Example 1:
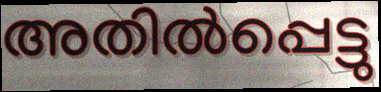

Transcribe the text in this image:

അതിൽപ്പെട്ടു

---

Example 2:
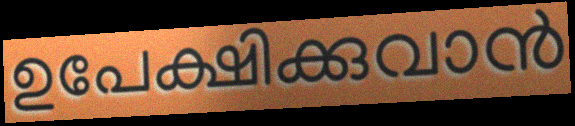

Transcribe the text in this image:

ഉപേക്ഷിക്കുവാൻ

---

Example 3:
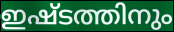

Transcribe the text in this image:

ഇഷ്ടത്തിനും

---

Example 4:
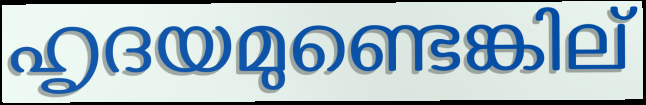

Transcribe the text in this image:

ഹൃദയമുണ്ടെങ്കില്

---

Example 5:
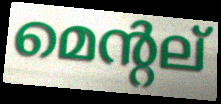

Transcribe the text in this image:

മെന്റല്